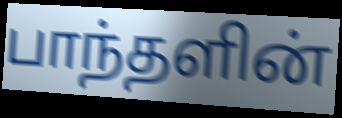
பாந்தளின்